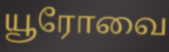
யூரோவை